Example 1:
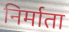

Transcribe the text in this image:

निर्माता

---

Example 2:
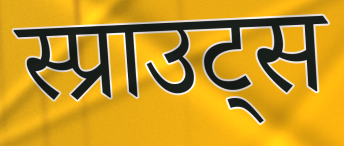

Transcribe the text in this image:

स्प्राउट्स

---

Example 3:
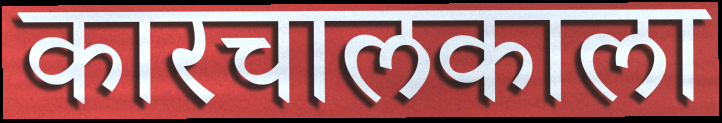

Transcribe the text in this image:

कारचालकाला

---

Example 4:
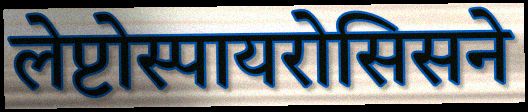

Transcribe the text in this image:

लेप्टोस्पायरोसिसने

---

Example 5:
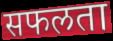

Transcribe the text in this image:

सफलता